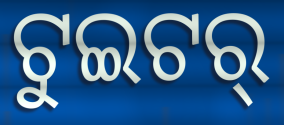
ଟୁଇଟର୍